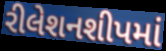
રીલેશનશીપમાં